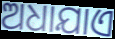
ଅଧାଯାଏ